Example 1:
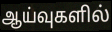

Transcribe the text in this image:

ஆய்வுகளில்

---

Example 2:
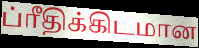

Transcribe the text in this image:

ப்ரீதிக்கிடமான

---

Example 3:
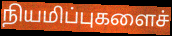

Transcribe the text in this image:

நியமிப்புகளைச்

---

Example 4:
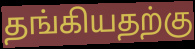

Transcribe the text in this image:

தங்கியதற்கு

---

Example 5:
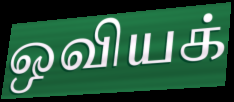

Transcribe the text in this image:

ஒவியக்